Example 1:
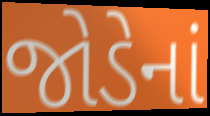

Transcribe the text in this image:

જોડેનાં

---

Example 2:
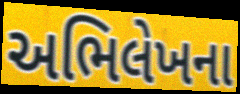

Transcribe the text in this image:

અભિલેખના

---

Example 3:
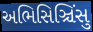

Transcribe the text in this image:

અભિસિઞ્ચિંસુ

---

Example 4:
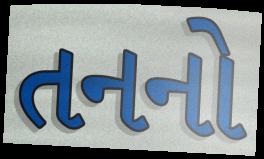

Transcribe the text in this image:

તનનો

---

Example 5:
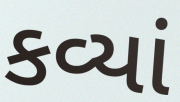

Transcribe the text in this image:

કવ્યાં